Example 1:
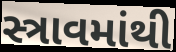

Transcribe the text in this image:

સ્ત્રાવમાંથી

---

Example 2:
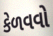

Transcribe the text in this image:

કેળવવો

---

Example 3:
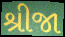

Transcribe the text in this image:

શ્રીજા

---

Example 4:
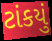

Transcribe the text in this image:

ટાંકયું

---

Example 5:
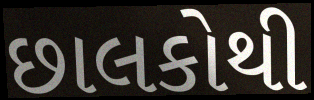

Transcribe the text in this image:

છાલકોથી